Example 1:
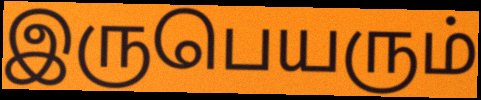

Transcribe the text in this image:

இருபெயரும்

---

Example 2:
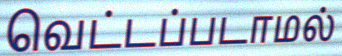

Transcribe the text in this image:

வெட்டப்படாமல்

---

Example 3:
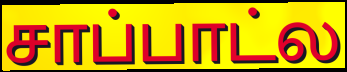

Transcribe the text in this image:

சாப்பாட்ல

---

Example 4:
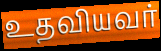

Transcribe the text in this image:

உதவியவர்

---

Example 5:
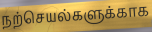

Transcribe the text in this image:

நற்செயல்களுக்காக